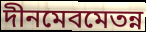
দীনমেবমেতন্ন